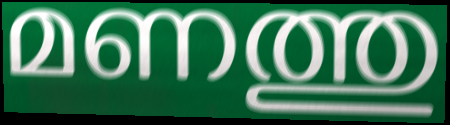
മണത്തു